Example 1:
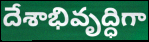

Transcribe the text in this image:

దేశాభివృద్ధిగా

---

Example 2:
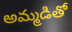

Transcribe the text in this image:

అమ్మడితో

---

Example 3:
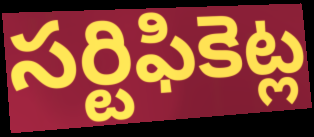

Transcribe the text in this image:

సర్టిఫికెట్ల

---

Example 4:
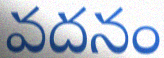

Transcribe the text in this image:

వదనం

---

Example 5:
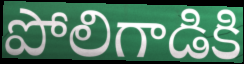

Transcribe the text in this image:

పోలిగాడికి